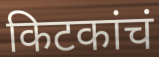
किटकांचं